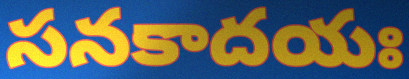
సనకాదయః